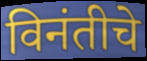
विनंतीचे